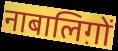
नाबालिग़ों